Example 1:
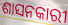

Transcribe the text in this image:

ଶାସନକାରୀ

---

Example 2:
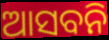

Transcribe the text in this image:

ଆସବନି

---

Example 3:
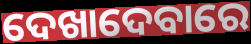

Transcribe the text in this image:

ଦେଖାଦେବାରେ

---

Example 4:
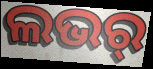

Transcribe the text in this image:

ଲଭର୍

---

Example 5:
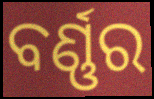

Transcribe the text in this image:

ବର୍ଣ୍ଣର